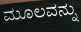
ಮೂಲವನ್ನು